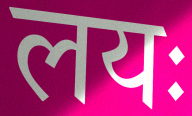
लयः